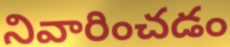
నివారించడం